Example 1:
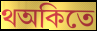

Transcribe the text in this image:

থঅকিতে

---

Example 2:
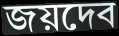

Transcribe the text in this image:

জয়দেব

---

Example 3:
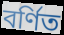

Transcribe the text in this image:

বর্ণিত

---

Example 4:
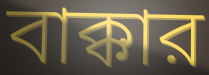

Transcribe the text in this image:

বাক্কার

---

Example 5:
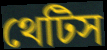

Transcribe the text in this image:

থেটিস